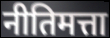
नीतिमत्ता